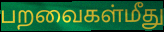
பறவைகள்மீது